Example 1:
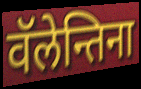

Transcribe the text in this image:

वॅलेन्तिना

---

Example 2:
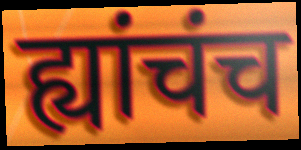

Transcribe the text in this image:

ह्यांचंच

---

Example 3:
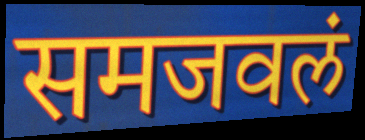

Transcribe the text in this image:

समजवलं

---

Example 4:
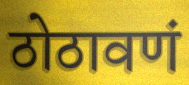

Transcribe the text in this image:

ठोठावणं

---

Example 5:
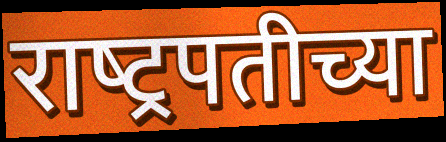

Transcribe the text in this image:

राष्ट्रपतीच्या